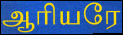
ஆரியரே